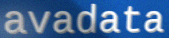
avadata